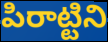
పిరాట్టిని